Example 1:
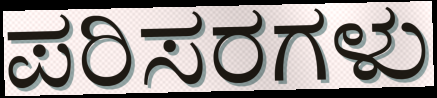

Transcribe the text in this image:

ಪರಿಸರಗಳು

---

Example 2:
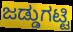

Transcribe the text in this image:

ಜಡ್ಡುಗಟ್ಟಿ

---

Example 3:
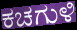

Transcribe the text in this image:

ಕಚಗುಳಿ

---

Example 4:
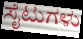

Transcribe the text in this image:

ಸೈಟುಗಳು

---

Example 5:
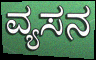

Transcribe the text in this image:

ವ್ಯಸನ